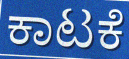
ಕಾಟಕೆ